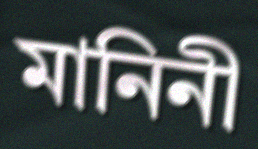
মানিনী